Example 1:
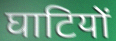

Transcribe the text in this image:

घाटियों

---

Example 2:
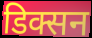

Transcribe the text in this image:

डिक्सन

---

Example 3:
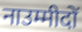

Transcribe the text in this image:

नाउम्मीदों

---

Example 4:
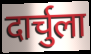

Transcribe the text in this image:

दार्चुला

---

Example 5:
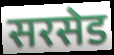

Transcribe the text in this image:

सरसेड